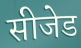
सीजेड